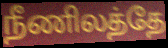
நீணிலத்தே